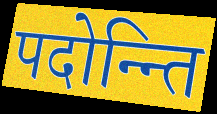
पदोन्न्ति